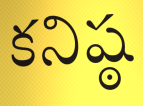
కనిష్ఠ